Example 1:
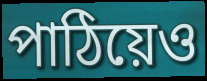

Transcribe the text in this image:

পাঠিয়েও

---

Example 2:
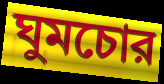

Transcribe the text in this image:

ঘুমচোর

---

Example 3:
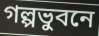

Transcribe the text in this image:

গল্পভুবনে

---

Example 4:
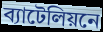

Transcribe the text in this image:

ব্যাটেলিয়নে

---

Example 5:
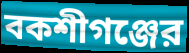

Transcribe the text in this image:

বকশীগঞ্জের